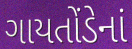
ગાયતોંડેનાં